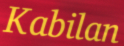
Kabilan